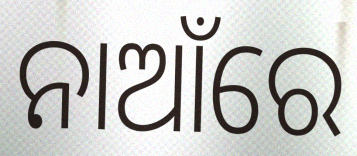
ନାଆଁରେ